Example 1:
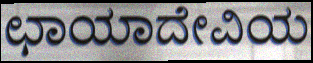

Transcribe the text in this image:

ಛಾಯಾದೇವಿಯ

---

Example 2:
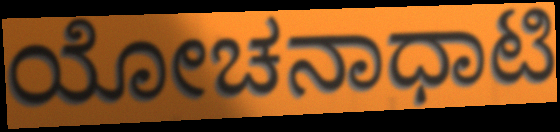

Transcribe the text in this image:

ಯೋಚನಾಧಾಟಿ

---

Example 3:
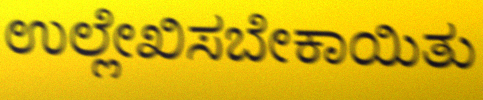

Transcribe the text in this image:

ಉಲ್ಲೇಖಿಸಬೇಕಾಯಿತು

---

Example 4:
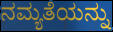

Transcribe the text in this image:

ನಮ್ಯತೆಯನ್ನು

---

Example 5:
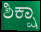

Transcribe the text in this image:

ಶಿಕ್ಷಾ